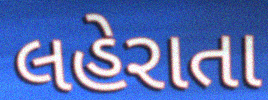
લહેરાતા